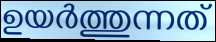
ഉയർത്തുന്നത്